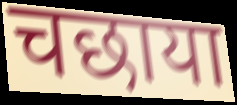
चछाया